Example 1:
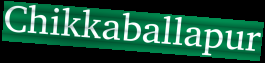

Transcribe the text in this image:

Chikkaballapur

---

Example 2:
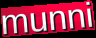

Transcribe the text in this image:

munni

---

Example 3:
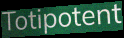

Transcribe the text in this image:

Totipotent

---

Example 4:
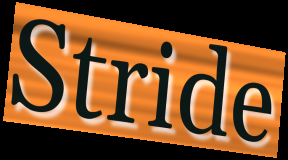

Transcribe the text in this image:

Stride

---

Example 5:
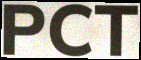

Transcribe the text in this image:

PCT